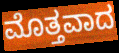
ಮೊತ್ತವಾದ